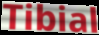
Tibial